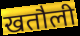
खतौली